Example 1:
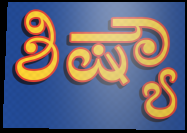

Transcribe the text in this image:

ಶಿಷ್ಯೌ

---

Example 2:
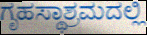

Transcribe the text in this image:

ಗೃಹಸ್ಥಾಶ್ರಮದಲ್ಲಿ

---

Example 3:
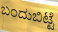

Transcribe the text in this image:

ಬಂದುಬಿಟ್ಟೆ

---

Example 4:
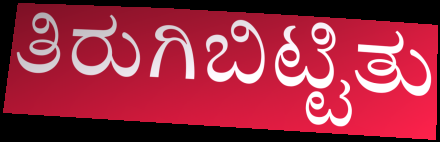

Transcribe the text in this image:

ತಿರುಗಿಬಿಟ್ಟಿತು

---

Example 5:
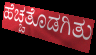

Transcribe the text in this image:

ಹೆಚ್ಚತೊಡಗಿತು